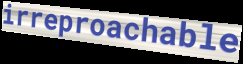
irreproachable